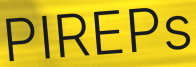
PIREPs